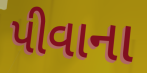
પીવાના